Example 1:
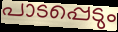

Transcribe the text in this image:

പാടപ്പെടും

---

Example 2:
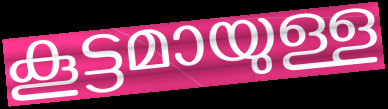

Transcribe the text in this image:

കൂട്ടമായുള്ള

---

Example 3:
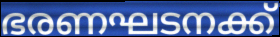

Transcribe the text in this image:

ഭരണഘടനക്ക്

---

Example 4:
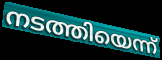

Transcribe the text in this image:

നടത്തിയെന്ന്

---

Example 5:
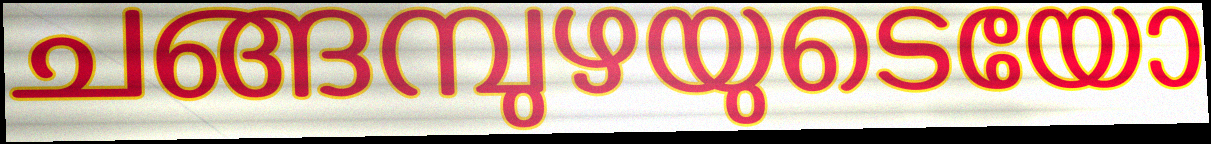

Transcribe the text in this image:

ചങ്ങമ്പുഴയുടെയോ